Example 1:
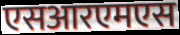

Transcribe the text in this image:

एसआरएमएस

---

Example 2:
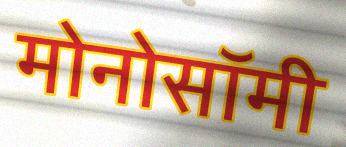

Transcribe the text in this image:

मोनोसॉमी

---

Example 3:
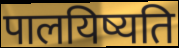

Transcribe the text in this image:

पालयिष्यति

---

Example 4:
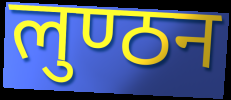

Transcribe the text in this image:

लुण्ठन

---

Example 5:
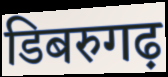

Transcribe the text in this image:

डिबरुगढ़